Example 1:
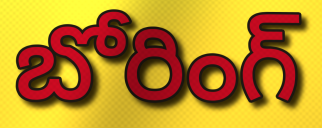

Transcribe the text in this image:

బోరింగ్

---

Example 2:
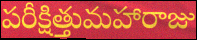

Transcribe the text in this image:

పరీక్షిత్తుమహారాజు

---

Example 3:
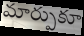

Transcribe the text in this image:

మార్పుకూ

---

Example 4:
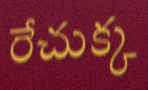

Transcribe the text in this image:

రేచుక్క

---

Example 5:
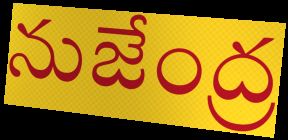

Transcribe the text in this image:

నుజేంద్ర